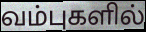
வம்புகளில்